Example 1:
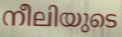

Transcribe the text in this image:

നീലിയുടെ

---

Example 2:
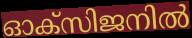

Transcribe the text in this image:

ഓക്സിജനിൽ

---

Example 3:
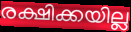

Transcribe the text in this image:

രക്ഷിക്കയില്ല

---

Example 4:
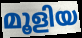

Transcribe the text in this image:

മൂളിയ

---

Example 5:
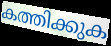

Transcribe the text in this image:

കത്തിക്കുക